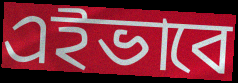
এইভাবে